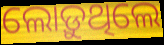
ଲୋଡ଼ୁଥିଲେ